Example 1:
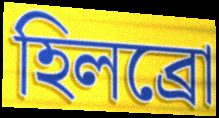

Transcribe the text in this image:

হিলব্রো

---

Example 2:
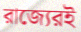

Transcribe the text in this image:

রাজ্যেরই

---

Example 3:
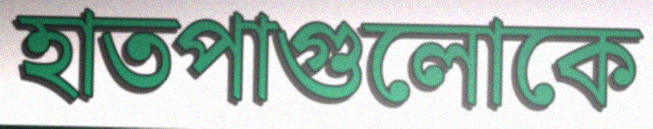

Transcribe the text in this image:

হাতপাগুলোকে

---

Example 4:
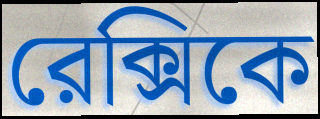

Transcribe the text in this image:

রেক্সিকে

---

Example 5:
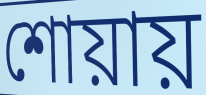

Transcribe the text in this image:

শোয়ায়